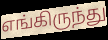
எங்கிருந்து